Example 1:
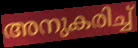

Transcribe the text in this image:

അനുകരിച്ച്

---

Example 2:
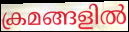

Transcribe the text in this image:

ക്രമങ്ങളിൽ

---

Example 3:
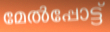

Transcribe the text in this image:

മേൽപ്പോട്ട്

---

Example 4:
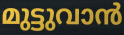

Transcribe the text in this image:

മുട്ടുവാൻ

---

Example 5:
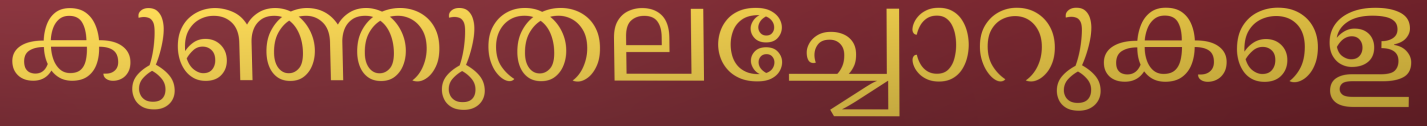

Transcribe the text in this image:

കുഞ്ഞുതലച്ചോറുകളെ